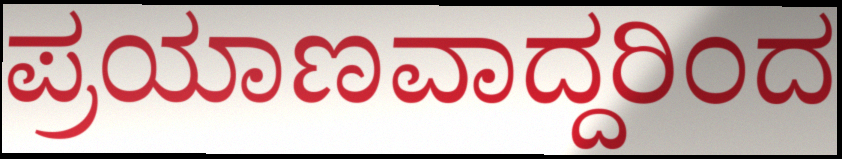
ಪ್ರಯಾಣವಾದ್ದರಿಂದ